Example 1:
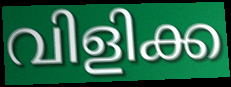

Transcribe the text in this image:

വിളിക്ക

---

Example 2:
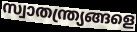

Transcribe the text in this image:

സ്വാതന്ത്ര്യങ്ങളെ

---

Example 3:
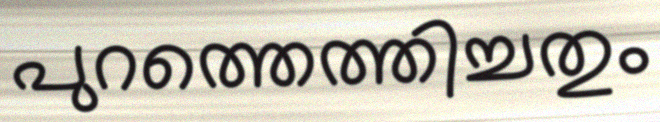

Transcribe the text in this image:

പുറത്തെത്തിച്ചതും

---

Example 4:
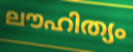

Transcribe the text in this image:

ലൗഹിത്യം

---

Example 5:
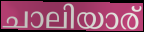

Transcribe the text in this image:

ചാലിയാര്